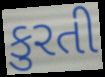
કુરતી